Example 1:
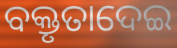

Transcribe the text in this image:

ବକ୍ତୃତାଦେଇ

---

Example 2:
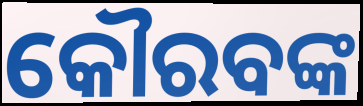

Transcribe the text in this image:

କୌରବଙ୍କ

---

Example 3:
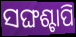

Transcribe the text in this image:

ସଙ୍ଘଶ୍ଚାପି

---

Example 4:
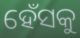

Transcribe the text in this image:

ହେଁସକୁ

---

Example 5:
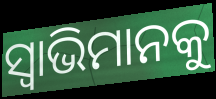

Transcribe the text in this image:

ସ୍ୱାଭିମାନକୁ